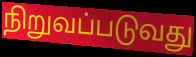
நிறுவப்படுவது